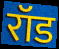
रॉड